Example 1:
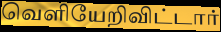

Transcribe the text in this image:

வெளியேறிவிட்டார்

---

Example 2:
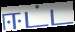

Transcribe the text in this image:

ஈட்ட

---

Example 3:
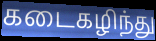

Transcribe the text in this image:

கடைகழிந்து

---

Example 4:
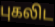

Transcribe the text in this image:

புகலிட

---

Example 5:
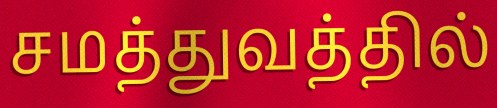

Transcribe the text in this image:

சமத்துவத்தில்